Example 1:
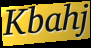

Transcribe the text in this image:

Kbahj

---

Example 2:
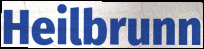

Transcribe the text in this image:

Heilbrunn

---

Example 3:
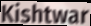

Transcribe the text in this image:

Kishtwar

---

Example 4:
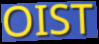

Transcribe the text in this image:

OIST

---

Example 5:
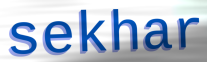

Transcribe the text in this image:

sekhar